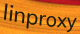
linproxy